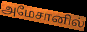
அமேசானில்